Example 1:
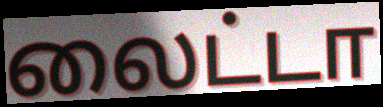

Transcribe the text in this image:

லைட்டா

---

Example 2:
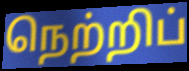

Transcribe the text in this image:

நெற்றிப்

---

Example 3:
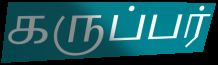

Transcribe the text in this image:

கருப்பர்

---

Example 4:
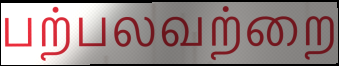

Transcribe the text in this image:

பற்பலவற்றை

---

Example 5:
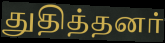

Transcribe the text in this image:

துதித்தனர்